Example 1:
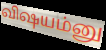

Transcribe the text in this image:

விஷயம்னு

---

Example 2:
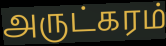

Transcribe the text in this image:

அருட்கரம்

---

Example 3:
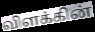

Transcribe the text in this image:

விளக்கின்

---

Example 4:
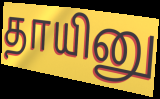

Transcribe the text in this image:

தாயினு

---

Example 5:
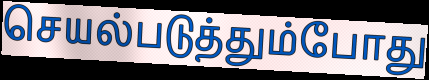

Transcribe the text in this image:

செயல்படுத்தும்போது